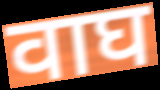
वाघ